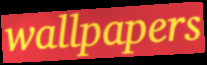
wallpapers